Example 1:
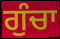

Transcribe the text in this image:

ਗੁੰਚਾ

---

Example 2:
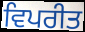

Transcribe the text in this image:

ਵਿਪਰੀਤ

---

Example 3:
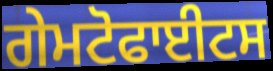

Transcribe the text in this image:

ਗੇਮਟੋਫਾਈਟਸ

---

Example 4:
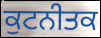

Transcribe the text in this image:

ਕੁਟਨੀਤਕ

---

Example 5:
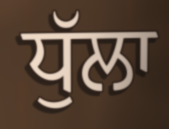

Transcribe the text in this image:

ਧੁੱਲਾ